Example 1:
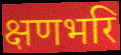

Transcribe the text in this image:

क्षणभरि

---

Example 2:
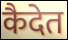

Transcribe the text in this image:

कैदेत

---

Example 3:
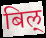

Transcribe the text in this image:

बिल्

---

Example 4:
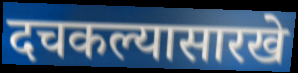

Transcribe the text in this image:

दचकल्यासारखे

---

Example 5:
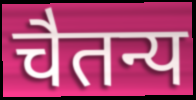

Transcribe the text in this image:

चैतन्य